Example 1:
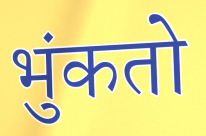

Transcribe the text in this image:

भुंकतो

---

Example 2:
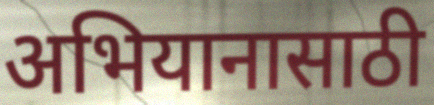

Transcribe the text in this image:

अभियानासाठी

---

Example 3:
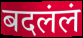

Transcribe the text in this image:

बदलंलं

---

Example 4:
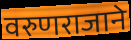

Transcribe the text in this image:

वरुणराजाने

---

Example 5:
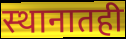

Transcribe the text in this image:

स्थानातही